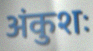
अंकुशः